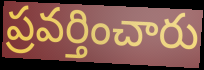
ప్రవర్తించారు